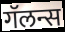
गॅलन्स